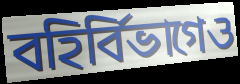
বহির্বিভাগেও